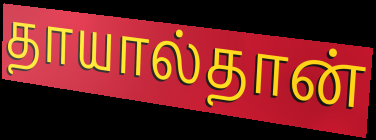
தாயால்தான்